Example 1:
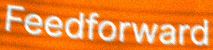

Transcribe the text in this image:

Feedforward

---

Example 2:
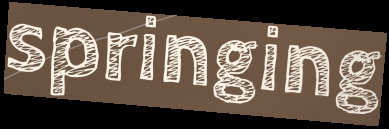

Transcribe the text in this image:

springing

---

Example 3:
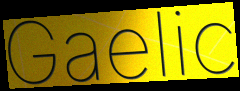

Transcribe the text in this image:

Gaelic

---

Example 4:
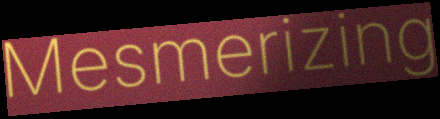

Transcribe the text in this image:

Mesmerizing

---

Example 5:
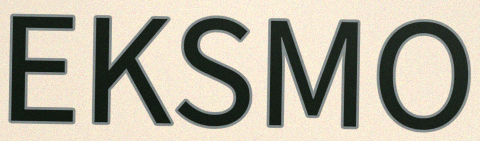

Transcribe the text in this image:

EKSMO